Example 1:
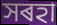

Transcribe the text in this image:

সৰহা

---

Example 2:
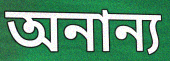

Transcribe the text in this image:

অনান্য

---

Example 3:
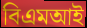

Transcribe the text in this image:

বিএমআই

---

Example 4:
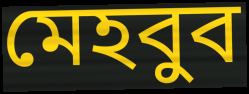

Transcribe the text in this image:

মেহবুব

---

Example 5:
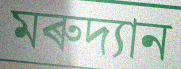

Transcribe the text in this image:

মৰুদ্যান